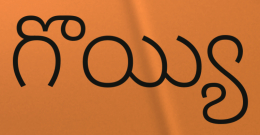
గొయ్యి